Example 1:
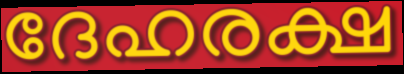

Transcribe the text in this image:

ദേഹരക്ഷ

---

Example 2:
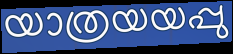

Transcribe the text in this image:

യാത്രയയപ്പു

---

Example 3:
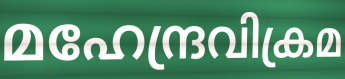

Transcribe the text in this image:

മഹേന്ദ്രവിക്രമ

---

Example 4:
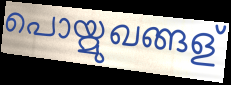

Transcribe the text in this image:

പൊയ്മുഖങ്ങള്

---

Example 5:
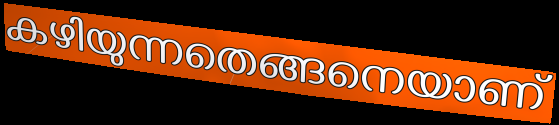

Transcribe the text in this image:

കഴിയുന്നതെങ്ങനെയാണ്